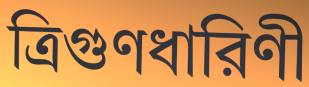
ত্রিগুণধারিণী